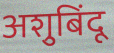
अश्रुबिंदू